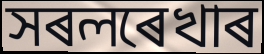
সৰলৰেখাৰ